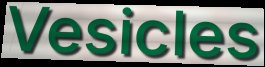
Vesicles